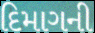
દિમાગની